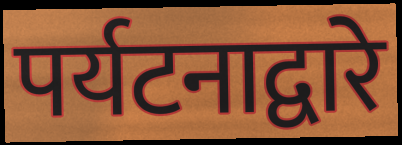
पर्यटनाद्वारे